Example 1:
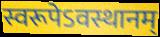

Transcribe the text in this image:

स्वरूपेऽवस्थानम्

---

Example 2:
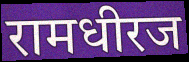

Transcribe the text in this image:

रामधीरज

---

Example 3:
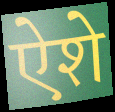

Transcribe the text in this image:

ऐशे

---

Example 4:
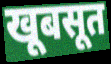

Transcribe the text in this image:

खूबसूत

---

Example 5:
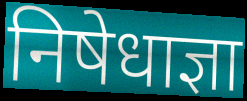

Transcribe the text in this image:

निषेधाज्ञा